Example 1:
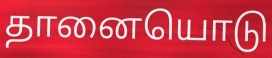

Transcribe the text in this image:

தானையொடு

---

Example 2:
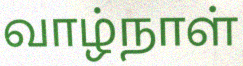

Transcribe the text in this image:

வாழ்நாள்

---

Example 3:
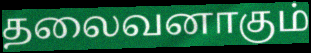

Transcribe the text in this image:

தலைவனாகும்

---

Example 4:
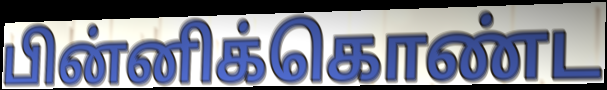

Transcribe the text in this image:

பின்னிக்கொண்ட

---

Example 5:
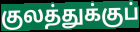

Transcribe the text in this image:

குலத்துக்குப்